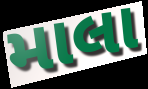
માલા